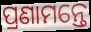
ପ୍ରଣାମନ୍ତେ